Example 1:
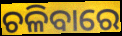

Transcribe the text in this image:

ଚଳିବାରେ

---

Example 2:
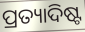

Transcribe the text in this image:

ପ୍ରତ୍ୟାଦିଷ୍ଟ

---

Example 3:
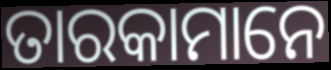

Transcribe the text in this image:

ତାରକାମାନେ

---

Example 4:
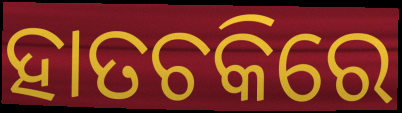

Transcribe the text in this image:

ହାତଚକିରେ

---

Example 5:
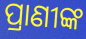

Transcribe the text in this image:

ପ୍ରାଣୀଙ୍କ